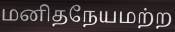
மனிதநேயமற்ற